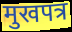
मुखपत्र